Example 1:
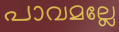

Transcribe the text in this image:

പാവമല്ലേ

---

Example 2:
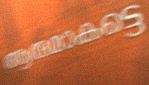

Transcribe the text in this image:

ആരുമാകട്ടെ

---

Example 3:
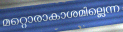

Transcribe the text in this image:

മറ്റൊരാകാശമില്ലെന്ന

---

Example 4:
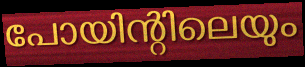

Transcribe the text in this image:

പോയിന്റിലെയും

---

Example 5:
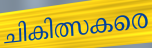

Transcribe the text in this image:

ചികിത്സകരെ